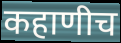
कहाणीच